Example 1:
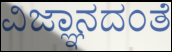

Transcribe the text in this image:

ವಿಜ್ಞಾನದಂತೆ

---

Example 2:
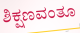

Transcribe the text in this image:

ಶಿಕ್ಷಣವಂತೂ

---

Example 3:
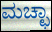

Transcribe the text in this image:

ಮಚ್ಛಾ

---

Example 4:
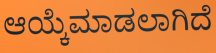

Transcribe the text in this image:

ಆಯ್ಕೆಮಾಡಲಾಗಿದೆ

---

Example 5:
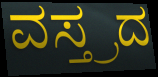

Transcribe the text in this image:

ವಸ್ತ್ರದ